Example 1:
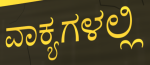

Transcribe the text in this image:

ವಾಕ್ಯಗಳಲ್ಲಿ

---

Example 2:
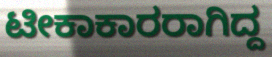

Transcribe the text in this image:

ಟೀಕಾಕಾರರಾಗಿದ್ದ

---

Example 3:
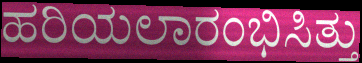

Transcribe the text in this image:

ಹರಿಯಲಾರಂಭಿಸಿತ್ತು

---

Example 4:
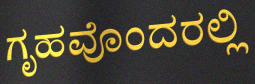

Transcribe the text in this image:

ಗೃಹವೊಂದರಲ್ಲಿ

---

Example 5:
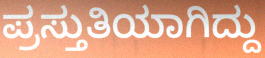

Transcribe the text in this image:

ಪ್ರಸ್ತುತಿಯಾಗಿದ್ದು